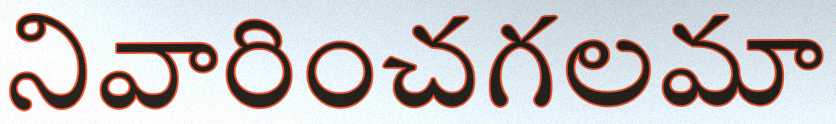
నివారించగలమా